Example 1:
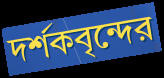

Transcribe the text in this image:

দর্শকবৃন্দের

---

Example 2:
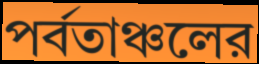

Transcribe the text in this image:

পর্বতাঞ্চলের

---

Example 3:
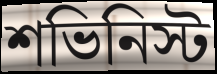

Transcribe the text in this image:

শভিনিস্ট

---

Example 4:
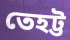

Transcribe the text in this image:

তেহট্ট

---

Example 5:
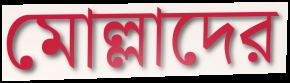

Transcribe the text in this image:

মোল্লাদের